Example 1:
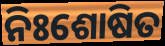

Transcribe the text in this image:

ନିଃଶୋଷିତ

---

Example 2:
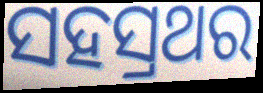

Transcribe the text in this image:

ସହସ୍ରଥର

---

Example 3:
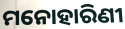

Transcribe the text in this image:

ମନୋହାରିଣୀ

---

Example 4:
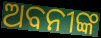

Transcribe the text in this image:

ଅବନୀଙ୍କ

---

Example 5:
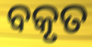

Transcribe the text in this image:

ବକୃତ